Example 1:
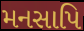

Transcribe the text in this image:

મનસાપિ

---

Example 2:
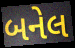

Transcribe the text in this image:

બનેલ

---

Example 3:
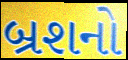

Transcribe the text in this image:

બ્રશનો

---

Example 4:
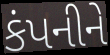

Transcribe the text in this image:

કંપનીને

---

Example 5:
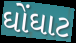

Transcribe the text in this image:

ઘોંઘાટ